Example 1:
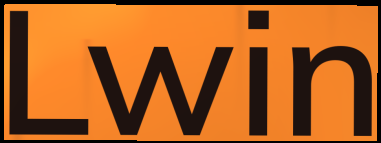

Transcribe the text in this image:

Lwin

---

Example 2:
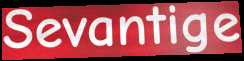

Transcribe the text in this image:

Sevantige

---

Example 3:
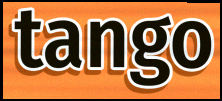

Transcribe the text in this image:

tango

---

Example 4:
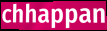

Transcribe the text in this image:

chhappan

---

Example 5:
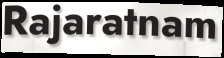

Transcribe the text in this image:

Rajaratnam